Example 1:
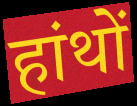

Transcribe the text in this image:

हांथों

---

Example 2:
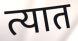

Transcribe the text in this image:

त्यात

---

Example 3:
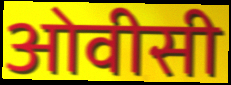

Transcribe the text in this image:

ओवीसी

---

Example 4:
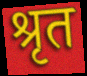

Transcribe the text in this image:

श्रृत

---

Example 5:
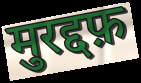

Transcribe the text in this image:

मुरद्दफ़